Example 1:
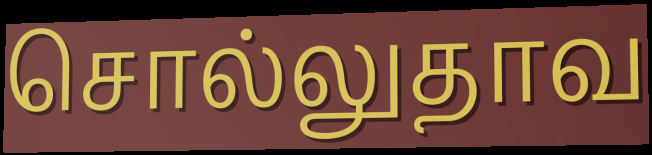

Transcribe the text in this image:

சொல்லுதாவ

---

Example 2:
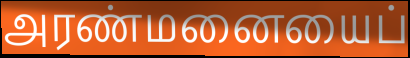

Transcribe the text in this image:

அரண்மனையைப்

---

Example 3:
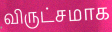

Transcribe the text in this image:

விருட்சமாக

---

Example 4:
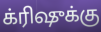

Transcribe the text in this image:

க்ரிஷுக்கு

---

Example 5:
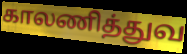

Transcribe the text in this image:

காலணித்துவ